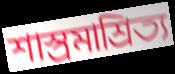
শাস্ত্রমাশ্রিত্য